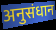
अनुसंधान